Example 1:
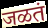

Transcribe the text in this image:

जळतं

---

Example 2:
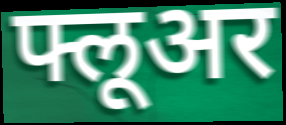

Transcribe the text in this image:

फ्लूअर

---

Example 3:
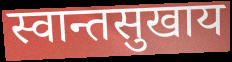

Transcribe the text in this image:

स्वान्तसुखाय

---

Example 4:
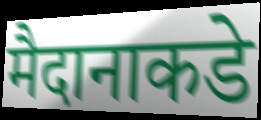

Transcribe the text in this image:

मैदानाकडे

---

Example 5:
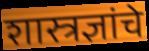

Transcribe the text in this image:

शास्त्रज्ञांचे